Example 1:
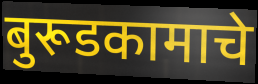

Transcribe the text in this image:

बुरूडकामाचे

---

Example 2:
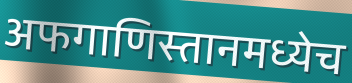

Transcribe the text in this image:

अफगाणिस्तानमध्येच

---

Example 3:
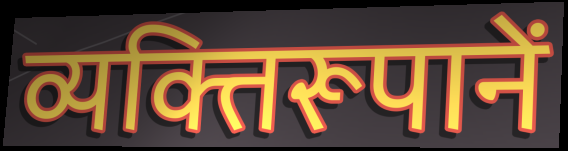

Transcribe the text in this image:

व्यक्तिरूपानें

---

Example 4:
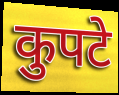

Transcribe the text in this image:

कुपटे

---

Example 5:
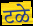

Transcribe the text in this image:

टळे